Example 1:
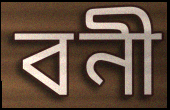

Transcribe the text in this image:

বনী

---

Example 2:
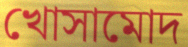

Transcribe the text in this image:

খোসামোদ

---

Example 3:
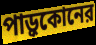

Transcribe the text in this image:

পাড়ুকোনের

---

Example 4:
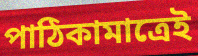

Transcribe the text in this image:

পাঠিকামাত্রেই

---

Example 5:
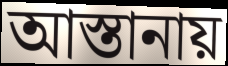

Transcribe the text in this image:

আস্তানায়